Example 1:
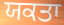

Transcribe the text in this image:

ਯਕਤਾ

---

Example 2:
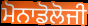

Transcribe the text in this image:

ਮੋਨਾਡੋਲੋਜੀ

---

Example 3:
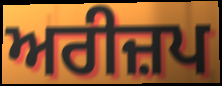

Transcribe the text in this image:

ਅਰੀਜ਼ਪ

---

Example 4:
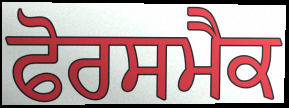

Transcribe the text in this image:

ਫੋਰਸਮੈਕ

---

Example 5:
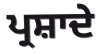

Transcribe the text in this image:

ਪ੍ਰਸ਼ਾਦੇ